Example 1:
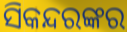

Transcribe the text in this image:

ସିକନ୍ଦରଙ୍କର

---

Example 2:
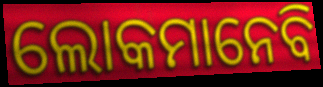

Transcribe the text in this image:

ଲୋକମାନେବି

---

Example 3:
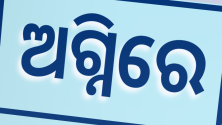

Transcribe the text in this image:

ଅଗ୍ନିରେ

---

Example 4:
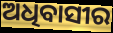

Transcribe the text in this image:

ଅଧିବାସୀର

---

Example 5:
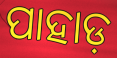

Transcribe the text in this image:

ପାହାଡ଼